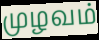
முழவம்